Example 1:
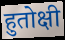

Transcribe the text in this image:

हुतोक्षी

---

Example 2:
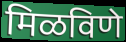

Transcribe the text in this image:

मिळविणे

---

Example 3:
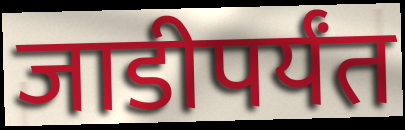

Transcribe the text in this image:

जाडीपर्यंत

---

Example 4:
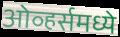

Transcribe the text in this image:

ओव्हर्समध्ये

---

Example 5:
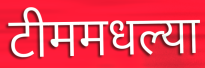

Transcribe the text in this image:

टीममधल्या